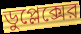
ডুপ্লেক্সের